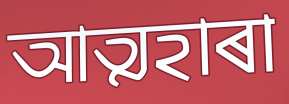
আত্মহাৰা